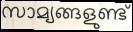
സാമ്യങ്ങളുണ്ട്